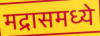
मद्रासमध्ये